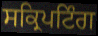
ਸਕ੍ਰਿਪਟਿੰਗ